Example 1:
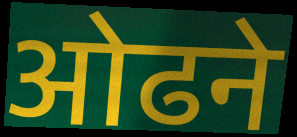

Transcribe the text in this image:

ओढने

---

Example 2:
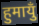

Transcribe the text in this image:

हुमायुँ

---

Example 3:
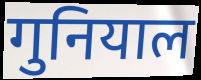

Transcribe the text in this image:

गुनियाल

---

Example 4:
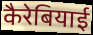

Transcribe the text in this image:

कैरेबियाई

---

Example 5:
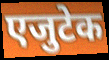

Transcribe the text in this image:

एजुटेक